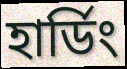
হার্ডিং